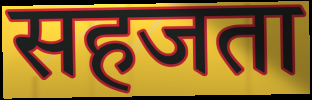
सहजता